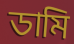
ডামি